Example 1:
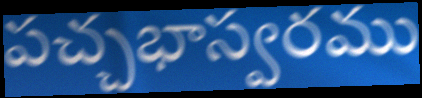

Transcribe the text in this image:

పచ్చభాస్వరము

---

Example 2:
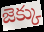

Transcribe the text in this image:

జెక్కు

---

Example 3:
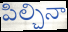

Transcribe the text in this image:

పిల్చినా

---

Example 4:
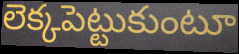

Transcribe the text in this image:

లెక్కపెట్టుకుంటూ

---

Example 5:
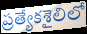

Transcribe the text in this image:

ప్రత్యేకశైలిలో